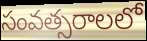
సంవత్సరాలలో